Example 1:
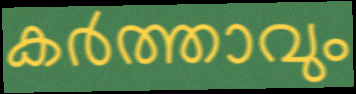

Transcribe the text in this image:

കർത്താവും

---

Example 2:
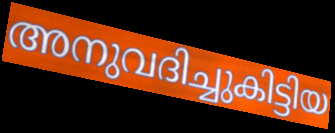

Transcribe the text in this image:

അനുവദിച്ചുകിട്ടിയ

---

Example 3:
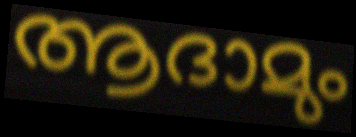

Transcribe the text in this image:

ആദാമും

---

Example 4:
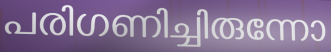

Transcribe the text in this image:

പരിഗണിച്ചിരുന്നോ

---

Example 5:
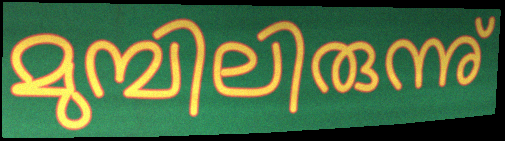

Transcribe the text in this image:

മുമ്പിലിരുന്നു്